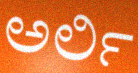
ಅರ್ಲಿ